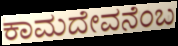
ಕಾಮದೇವನೆಂಬ